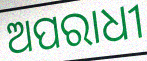
ଅପରାଧୀ